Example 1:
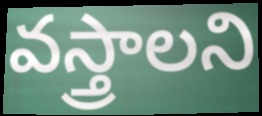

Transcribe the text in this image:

వస్త్రాలని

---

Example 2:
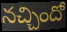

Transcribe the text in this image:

నచ్చిందో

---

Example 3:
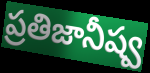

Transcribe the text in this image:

ప్రతిజానీష్వ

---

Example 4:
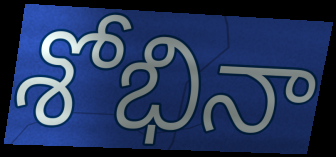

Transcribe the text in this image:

శోభినా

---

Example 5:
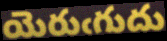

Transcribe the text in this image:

యెరుఁగుదు